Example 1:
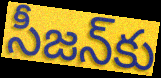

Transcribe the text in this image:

సీజన్‌కు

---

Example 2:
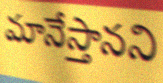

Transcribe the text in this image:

మానేస్తానని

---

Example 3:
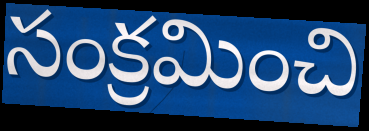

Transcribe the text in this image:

సంక్రమించి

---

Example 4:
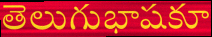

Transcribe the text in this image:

తెలుగుభాషకూ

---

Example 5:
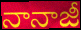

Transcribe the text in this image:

నానాజీ